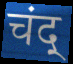
चंद्